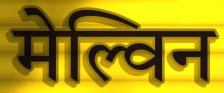
मेल्विन